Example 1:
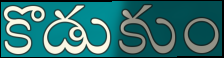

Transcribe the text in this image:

కొడుకుం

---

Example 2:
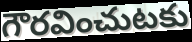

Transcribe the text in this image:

గౌరవించుటకు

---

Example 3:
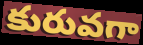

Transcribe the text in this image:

కురువగా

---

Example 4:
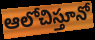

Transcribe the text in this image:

ఆలోచిస్తూనో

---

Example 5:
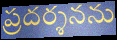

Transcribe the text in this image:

ప్రదర్శనను